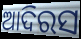
ଆଦିରସ